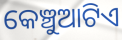
କେଞ୍ଚୁଆଟିଏ